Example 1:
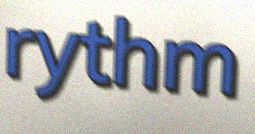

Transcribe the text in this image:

rythm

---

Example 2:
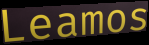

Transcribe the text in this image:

Leamos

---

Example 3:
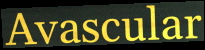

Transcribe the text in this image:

Avascular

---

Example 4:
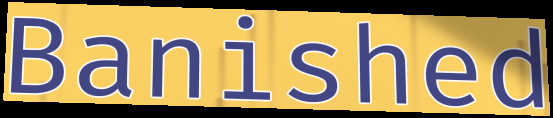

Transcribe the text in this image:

Banished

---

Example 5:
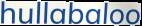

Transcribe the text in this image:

hullabaloo